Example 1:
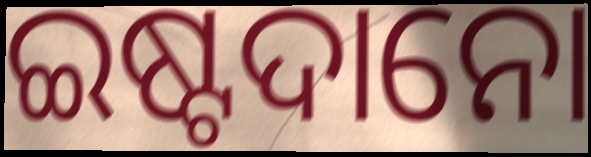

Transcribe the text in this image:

ଇଷ୍ଟଦାନୋ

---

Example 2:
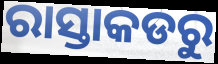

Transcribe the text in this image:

ରାସ୍ତାକଡରୁ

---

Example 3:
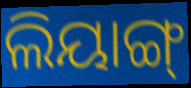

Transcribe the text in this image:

ଲିୟାଙ୍ଗ୍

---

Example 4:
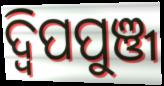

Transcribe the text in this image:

ଦ୍ଵିପପୁଞ୍ଜ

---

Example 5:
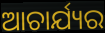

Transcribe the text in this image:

ଆଚାର୍ଯ୍ୟର